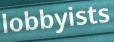
lobbyists